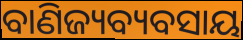
ବାଣିଜ୍ୟବ୍ୟବସାୟ